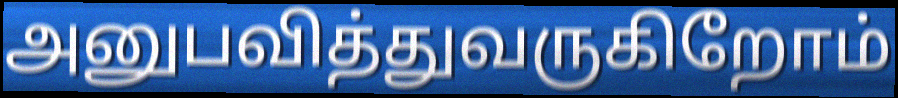
அனுபவித்துவருகிறோம்